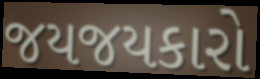
જયજયકારો